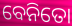
ବେନିତୋ